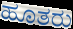
ಹೂತರು